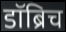
डॉब्रिच